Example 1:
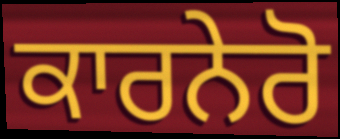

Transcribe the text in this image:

ਕਾਰਨੇਰੋ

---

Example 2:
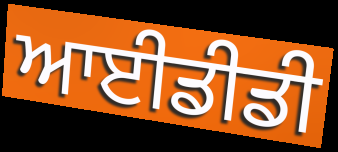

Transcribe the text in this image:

ਆਈਡੀਡੀ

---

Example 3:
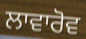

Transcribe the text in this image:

ਲਾਵਾਰੋਵ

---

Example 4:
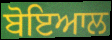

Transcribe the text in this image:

ਬੋਇਆਲ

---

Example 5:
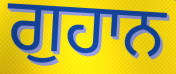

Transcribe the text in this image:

ਗੁਹਾਨ